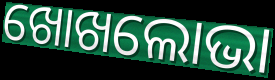
ଖୋଖଲୋଭା